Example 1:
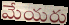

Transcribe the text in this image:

మేయరు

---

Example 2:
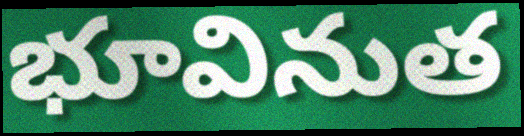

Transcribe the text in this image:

భూవినుత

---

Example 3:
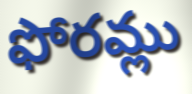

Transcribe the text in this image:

ఫోరమ్లు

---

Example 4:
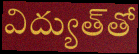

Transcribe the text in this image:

విద్యుత్‌తో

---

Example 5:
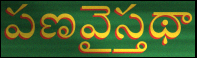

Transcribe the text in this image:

పణవైస్తథా